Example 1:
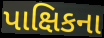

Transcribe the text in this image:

પાક્ષિકના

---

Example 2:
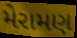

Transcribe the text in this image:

મેરામણ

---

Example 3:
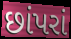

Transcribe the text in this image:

છાંપરાં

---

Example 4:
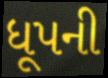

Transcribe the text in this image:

ધૂપની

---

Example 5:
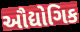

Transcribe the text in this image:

ઔદ્યોગિક